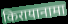
किरायानामा